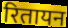
रितायन